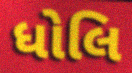
ધોલિ